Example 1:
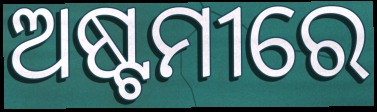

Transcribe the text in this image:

ଅଷ୍ଟମୀରେ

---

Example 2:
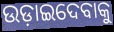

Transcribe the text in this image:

ଉଡ଼ାଇଦେବାକୁ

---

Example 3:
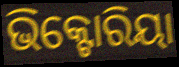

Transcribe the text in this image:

ଭିକ୍ଟୋରିୟା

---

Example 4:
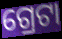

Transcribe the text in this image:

ଗ୍ରେଟା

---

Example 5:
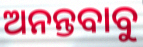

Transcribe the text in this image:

ଅନନ୍ତବାବୁ